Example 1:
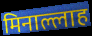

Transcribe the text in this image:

मिनाल्लाह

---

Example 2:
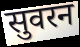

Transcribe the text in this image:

सुवरन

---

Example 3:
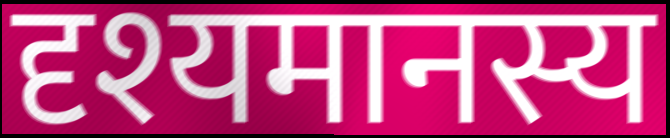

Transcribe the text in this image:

दृश्यमानस्य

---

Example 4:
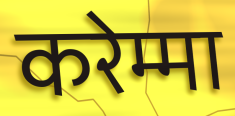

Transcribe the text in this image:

करेम्मा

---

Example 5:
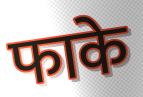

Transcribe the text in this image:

फाके